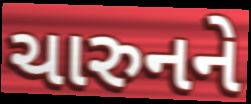
ચારુનને